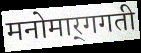
मनोमार्गगती